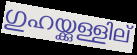
ഗുഹയ്ക്കുള്ളില്